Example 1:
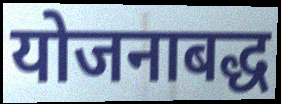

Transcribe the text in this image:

योजनाबद्ध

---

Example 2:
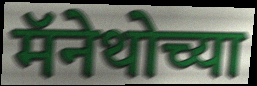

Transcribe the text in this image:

मॅनेथोच्या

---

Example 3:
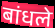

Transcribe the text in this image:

बांधले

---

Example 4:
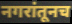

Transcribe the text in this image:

नगरांतूनच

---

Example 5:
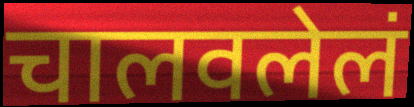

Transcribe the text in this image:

चालवलेलं